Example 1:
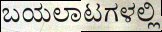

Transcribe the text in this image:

ಬಯಲಾಟಗಳಲ್ಲಿ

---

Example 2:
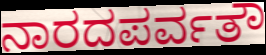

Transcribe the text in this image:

ನಾರದಪರ್ವತೌ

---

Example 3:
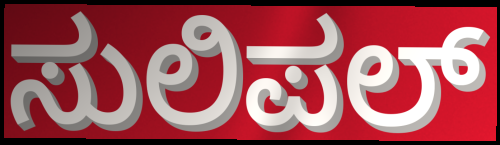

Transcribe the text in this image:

ಸುಲಿಪಲ್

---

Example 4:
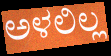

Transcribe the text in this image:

ಅಳಲಿಲ್ಲ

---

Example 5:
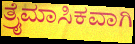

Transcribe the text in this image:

ತ್ರೈಮಾಸಿಕವಾಗಿ